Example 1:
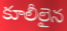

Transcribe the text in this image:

కూలీలైన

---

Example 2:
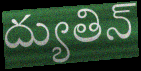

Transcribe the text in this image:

ద్యుతిన్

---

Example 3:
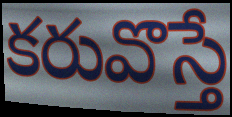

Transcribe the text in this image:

కరువొస్తే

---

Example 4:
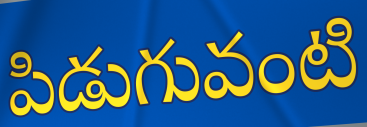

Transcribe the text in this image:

పిడుగువంటి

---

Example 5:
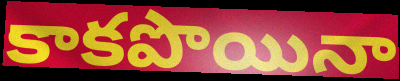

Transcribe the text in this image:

కాకపొయినా